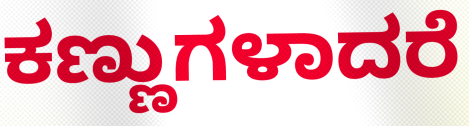
ಕಣ್ಣುಗಳಾದರೆ